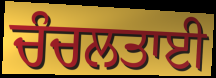
ਚੰਚਲਤਾਈ